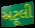
અટૂલી